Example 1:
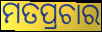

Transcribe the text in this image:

ମତପ୍ରଚାର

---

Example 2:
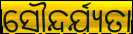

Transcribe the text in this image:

ସୌନ୍ଦର୍ଯ୍ୟତା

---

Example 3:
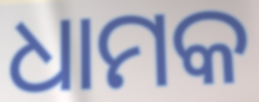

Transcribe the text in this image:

ଧାମକ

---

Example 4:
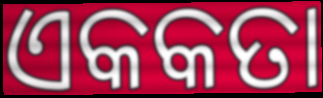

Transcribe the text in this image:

ଏକକତା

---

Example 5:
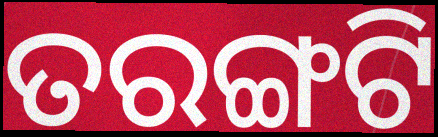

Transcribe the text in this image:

ତରଙ୍ଗଟି